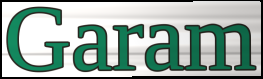
Garam